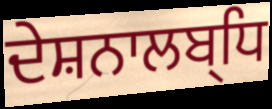
ਦੇਸ਼ਨਾਲਬ੍ਧਿ